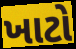
ખાટો